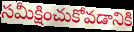
సమీక్షించుకోవడానికి